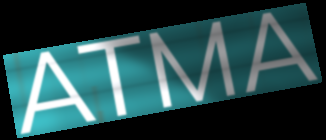
ATMA